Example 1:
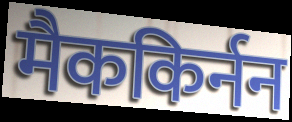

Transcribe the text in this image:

मैककिर्नन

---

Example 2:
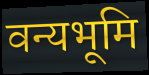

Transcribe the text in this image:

वन्यभूमि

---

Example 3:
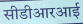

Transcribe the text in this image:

सीडीआरआई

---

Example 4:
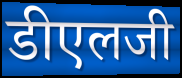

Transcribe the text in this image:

डीएलजी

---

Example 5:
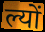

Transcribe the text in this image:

ल्यों